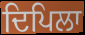
ਦਿਪਿਲਾ